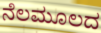
ನೆಲಮೂಲದ